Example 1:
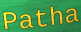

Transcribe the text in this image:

Patha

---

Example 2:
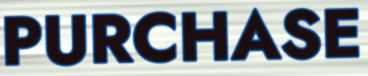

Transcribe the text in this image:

PURCHASE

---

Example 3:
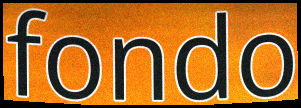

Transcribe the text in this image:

fondo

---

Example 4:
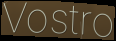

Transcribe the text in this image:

Vostro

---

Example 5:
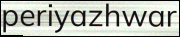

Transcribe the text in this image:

periyazhwar